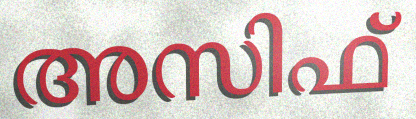
അസിഫ്